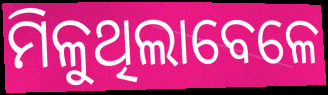
ମିଳୁଥିଲାବେଳେ